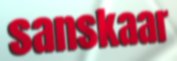
sanskaar